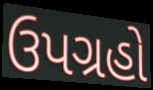
ઉપગ્રહો